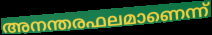
അനന്തരഫലമാണെന്ന്